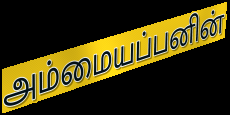
அம்மையப்பனின்